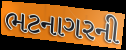
ભટનાગરની